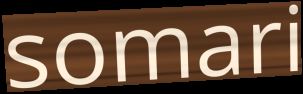
somari